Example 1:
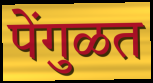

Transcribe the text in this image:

पेंगुळत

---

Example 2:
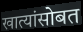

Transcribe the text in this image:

खात्यांसोबत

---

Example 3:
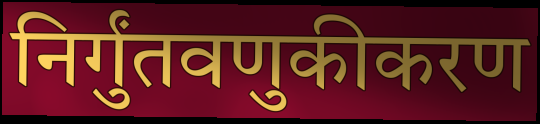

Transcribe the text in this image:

निर्गुंतवणुकीकरण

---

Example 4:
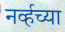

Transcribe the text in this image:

नर्व्हच्या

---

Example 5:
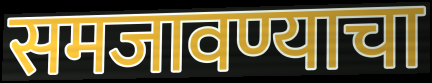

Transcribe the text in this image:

समजावण्याचा